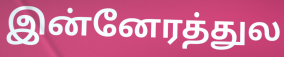
இன்னேரத்துல